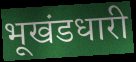
भूखंडधारी